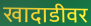
खादाडीवर